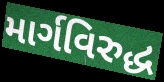
માર્ગવિરુદ્ધ